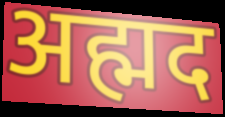
अह्मद